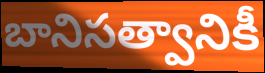
బానిసత్వానికీ